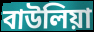
বাউলিয়া